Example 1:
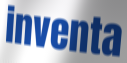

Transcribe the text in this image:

inventa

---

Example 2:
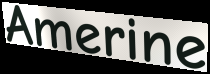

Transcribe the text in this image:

Amerine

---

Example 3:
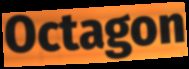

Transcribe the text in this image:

Octagon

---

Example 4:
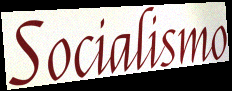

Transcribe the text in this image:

Socialismo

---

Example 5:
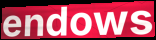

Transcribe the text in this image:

endows